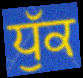
ਧੁੱਕ